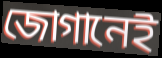
জোগানেই